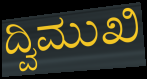
ದ್ವಿಮುಖಿ